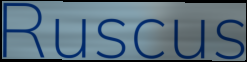
Ruscus